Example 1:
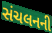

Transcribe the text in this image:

સંચલનની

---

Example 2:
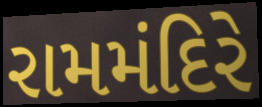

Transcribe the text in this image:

રામમંદિરે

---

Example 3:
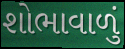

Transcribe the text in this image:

શોભાવાળું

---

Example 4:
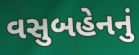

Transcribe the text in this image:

વસુબહેનનું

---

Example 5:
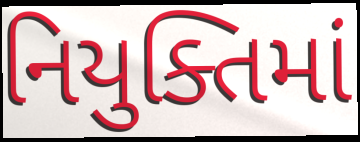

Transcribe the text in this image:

નિયુક્તિમાં